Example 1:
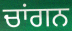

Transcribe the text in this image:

ਚਾਂਗਨ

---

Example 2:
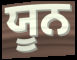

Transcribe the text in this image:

ਯੂਨ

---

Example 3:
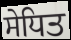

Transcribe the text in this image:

ਸੇਧਿਤ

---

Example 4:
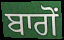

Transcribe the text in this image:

ਬਾਗੋਂ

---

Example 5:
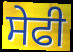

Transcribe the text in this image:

ਸੇਫੀ